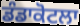
ਡੰਡਾਕੋਟਲਾ